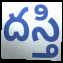
దస్తి